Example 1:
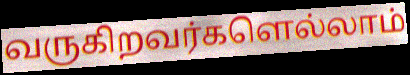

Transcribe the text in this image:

வருகிறவர்களெல்லாம்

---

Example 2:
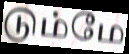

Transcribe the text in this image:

டும்மே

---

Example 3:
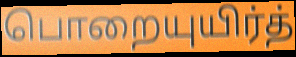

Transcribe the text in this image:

பொறையுயிர்த்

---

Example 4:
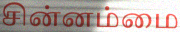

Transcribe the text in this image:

சின்னம்மை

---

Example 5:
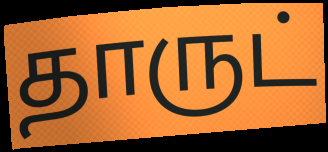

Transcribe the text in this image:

தாருட்